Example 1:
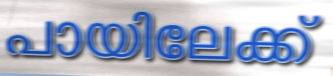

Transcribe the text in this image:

പായിലേക്ക്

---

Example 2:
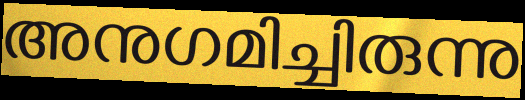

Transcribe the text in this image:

അനുഗമിച്ചിരുന്നു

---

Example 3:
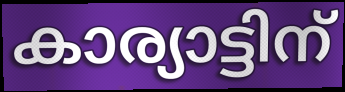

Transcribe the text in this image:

കാര്യാട്ടിന്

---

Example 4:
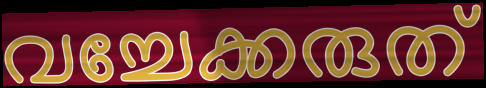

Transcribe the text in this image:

വച്ചേക്കരുത്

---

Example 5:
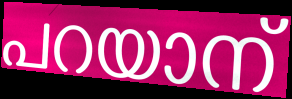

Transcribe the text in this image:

പറയാന്